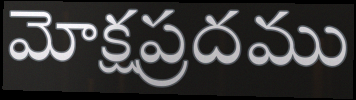
మోక్షప్రదము